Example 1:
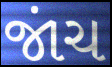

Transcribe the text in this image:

જાંચ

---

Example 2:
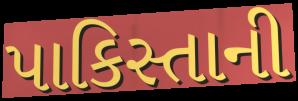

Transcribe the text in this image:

પાકિસ્તાની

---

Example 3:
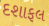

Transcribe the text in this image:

દશાફલ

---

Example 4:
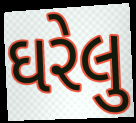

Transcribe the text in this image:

ઘરેલુ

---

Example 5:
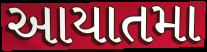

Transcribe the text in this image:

આયાતમા